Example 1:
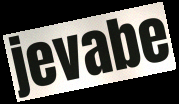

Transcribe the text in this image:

jevabe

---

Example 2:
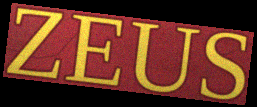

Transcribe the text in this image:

ZEUS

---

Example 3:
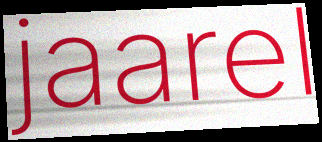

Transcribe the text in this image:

jaarel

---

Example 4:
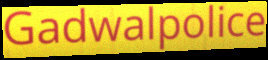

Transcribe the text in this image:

Gadwalpolice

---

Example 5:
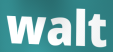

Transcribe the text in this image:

walt